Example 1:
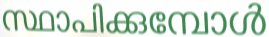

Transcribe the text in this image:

സ്ഥാപിക്കുമ്പോൾ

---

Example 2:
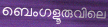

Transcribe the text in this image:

ബെംഗളൂരുവിലെ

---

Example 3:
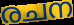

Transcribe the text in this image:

രചന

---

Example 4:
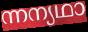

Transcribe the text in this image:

ന്നന്യഥാ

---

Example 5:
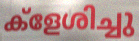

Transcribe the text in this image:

ക്ളേശിച്ചു